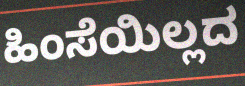
ಹಿಂಸೆಯಿಲ್ಲದ